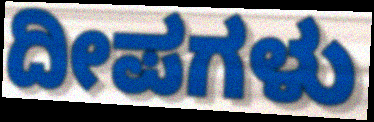
ದೀಪಗಳು